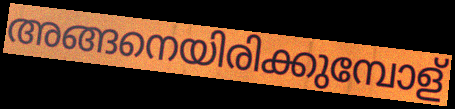
അങ്ങനെയിരിക്കുമ്പോള്